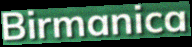
Birmanica